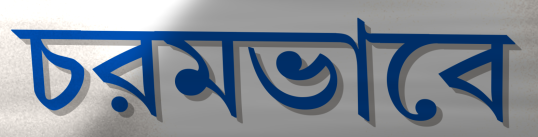
চরমভাবে